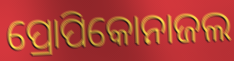
ପ୍ରୋପିକୋନାଜଲ